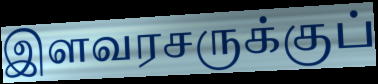
இளவரசருக்குப்